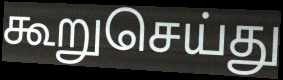
கூறுசெய்து